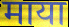
माया